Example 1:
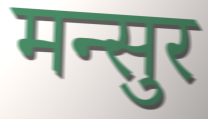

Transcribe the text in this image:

मन्सुर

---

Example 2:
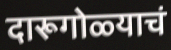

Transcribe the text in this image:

दारूगोळ्याचं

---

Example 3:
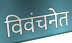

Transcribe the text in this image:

विवंचनेत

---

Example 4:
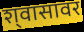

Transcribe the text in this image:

श्वासावर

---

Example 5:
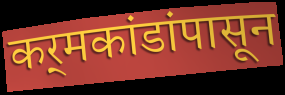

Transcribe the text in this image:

कर्मकांडांपासून